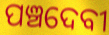
ପଞ୍ଚଦେବୀ